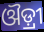
ଔଡ଼୍ରୀ